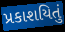
પ્રકાશયિતું